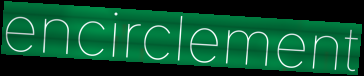
encirclement